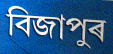
বিজাপুৰ